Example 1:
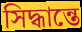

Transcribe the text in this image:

সিদ্ধান্তে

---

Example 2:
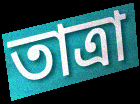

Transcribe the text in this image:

তাত্রা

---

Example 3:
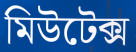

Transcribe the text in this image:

মিউটেক্স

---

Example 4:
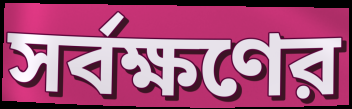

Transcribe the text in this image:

সর্বক্ষণের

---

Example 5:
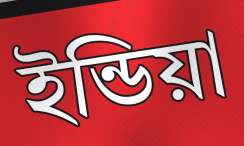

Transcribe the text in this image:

ইন্ডিয়া